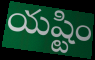
యష్టిం